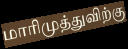
மாரிமுத்துவிற்கு